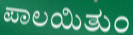
ಪಾಲಯಿತುಂ